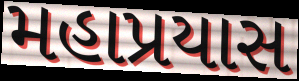
મહાપ્રયાસ